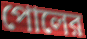
পোলের